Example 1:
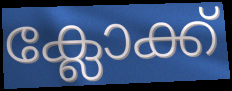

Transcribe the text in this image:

ക്ലോക്ക്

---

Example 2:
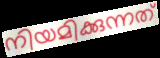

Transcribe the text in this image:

നിയമിക്കുന്നത്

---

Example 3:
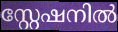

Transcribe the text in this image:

സ്റ്റേഷനിൽ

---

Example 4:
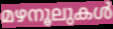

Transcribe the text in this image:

മഴനൂലുകൾ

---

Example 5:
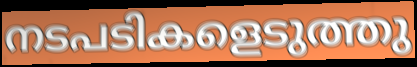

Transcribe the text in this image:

നടപടികളെടുത്തു